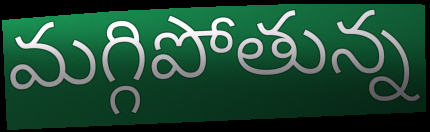
మగ్గిపోతున్న